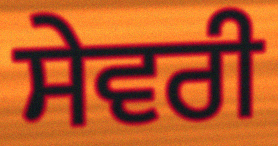
ਸੇਵਰੀ